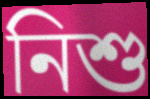
নিশু